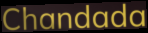
Chandada